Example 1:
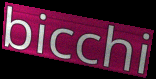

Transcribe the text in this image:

bicchi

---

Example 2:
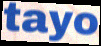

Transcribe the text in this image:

tayo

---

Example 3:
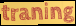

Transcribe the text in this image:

traning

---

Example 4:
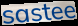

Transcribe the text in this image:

sastee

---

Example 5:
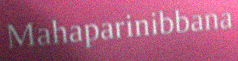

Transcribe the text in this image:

Mahaparinibbana